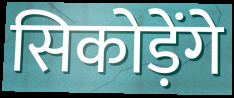
सिकोड़ेंगे